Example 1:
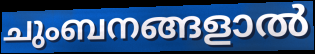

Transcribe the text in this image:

ചുംബനങ്ങളാൽ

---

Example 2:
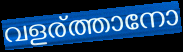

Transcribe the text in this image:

വളര്ത്താനോ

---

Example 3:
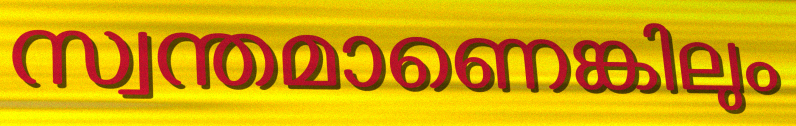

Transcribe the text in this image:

സ്വന്തമാണെങ്കിലും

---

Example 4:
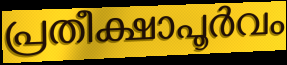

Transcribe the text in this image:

പ്രതീക്ഷാപൂർവം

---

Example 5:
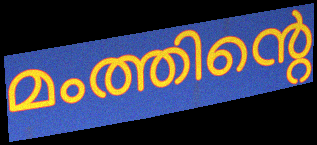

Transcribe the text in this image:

മംത്തിന്റെ